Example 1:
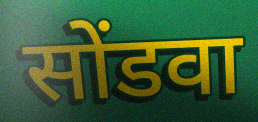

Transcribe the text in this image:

सोंडवा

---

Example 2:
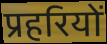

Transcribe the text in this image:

प्रहरियों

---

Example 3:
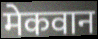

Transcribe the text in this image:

मेकवान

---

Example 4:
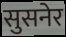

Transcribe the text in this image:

सुसनेर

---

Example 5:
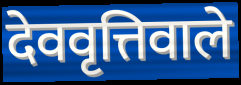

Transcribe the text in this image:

देववृत्तिवाले